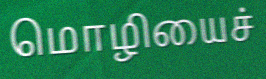
மொழியைச்